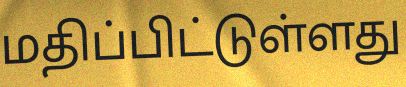
மதிப்பிட்டுள்ளது